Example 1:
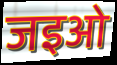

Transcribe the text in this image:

जइओ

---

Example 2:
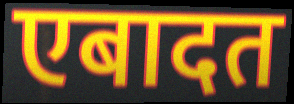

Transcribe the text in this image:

एबादत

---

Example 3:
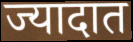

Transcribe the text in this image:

ज्यादात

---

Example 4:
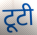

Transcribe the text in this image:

टूटी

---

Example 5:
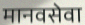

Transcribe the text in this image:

मानवसेवा